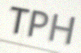
TPH